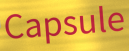
Capsule